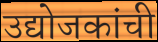
उद्योजकांची